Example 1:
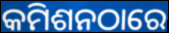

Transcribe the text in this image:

କମିଶନଠାରେ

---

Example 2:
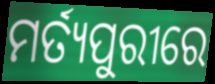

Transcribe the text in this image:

ମର୍ତ୍ୟପୁରୀରେ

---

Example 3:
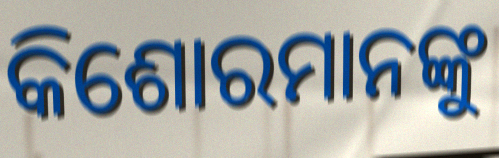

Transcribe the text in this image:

କିଶୋରମାନଙ୍କୁ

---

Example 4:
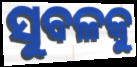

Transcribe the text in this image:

ସୁବଳକୁ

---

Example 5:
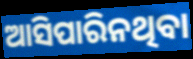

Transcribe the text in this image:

ଆସିପାରିନଥିବା